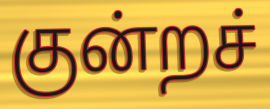
குன்றச்